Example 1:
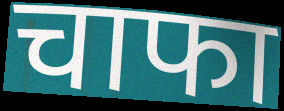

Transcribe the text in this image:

चाफा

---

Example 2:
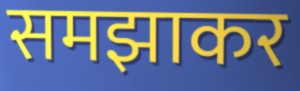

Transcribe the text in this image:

समझाकर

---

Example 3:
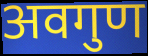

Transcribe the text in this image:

अवगुण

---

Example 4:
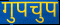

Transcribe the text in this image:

गुपचुप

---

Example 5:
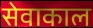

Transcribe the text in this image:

सेवाकाल